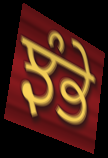
ਝੰਭੇ